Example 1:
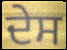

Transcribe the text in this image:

ਦੇਸ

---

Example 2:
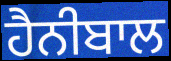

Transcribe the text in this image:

ਹੈਨੀਬਾਲ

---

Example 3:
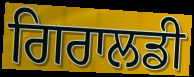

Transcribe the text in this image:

ਗਿਰਾਲਡੀ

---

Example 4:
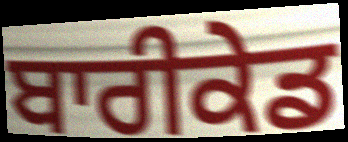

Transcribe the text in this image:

ਬਾਰੀਕੇਡ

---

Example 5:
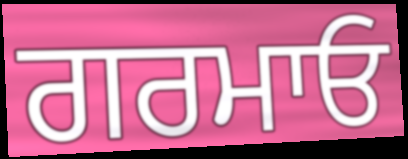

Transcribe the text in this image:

ਗਰਮਾਓ